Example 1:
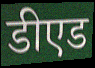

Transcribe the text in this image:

डीएड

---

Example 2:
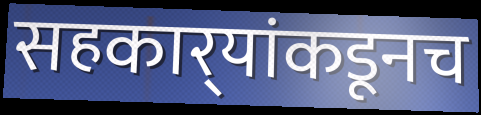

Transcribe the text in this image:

सहकार्‍यांकडूनच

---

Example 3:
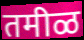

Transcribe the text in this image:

तमीळ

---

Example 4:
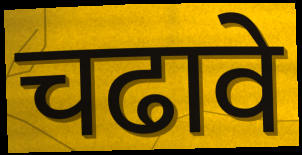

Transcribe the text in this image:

चढावे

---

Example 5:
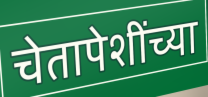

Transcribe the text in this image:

चेतापेशींच्या